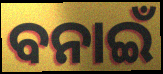
ବନାଇଁ